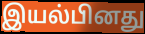
இயல்பினது